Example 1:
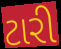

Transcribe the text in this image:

ટારી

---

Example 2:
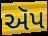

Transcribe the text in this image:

ઍપ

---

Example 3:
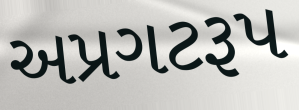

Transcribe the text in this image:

અપ્રગટરૂપ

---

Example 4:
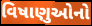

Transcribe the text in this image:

વિષાણુઓનો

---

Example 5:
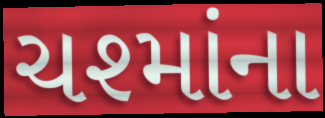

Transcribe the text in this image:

ચશ્માંના